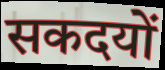
सकदयों